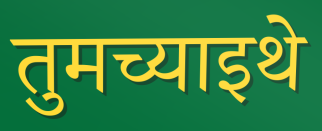
तुमच्याइथे